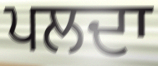
ਪਲਦਾ